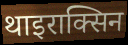
थाइराक्सिन